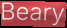
Beary